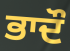
ਭਾਦੌ